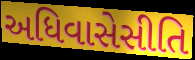
અધિવાસેસીતિ